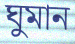
ঘুমান